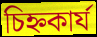
চিহ্নকার্য